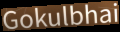
Gokulbhai